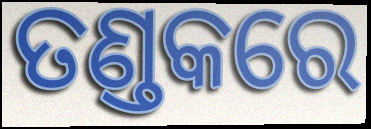
ତଣ୍ଡକରେ